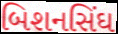
બિશનસિંઘ